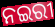
ନଇରୀ